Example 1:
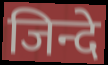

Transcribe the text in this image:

जिन्दे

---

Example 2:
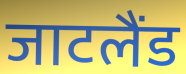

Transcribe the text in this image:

जाटलैंड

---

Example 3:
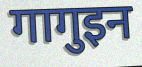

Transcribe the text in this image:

गागुइन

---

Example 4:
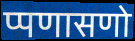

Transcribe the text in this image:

प्पणासणो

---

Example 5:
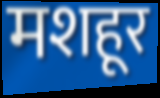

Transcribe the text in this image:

मशहूर